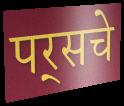
पर्सचे